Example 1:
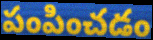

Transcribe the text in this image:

పంపించడం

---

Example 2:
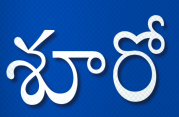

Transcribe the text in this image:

శూరో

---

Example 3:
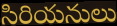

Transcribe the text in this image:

సిరియనులు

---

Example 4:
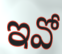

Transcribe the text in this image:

ఇవో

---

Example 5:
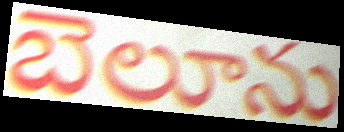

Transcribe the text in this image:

బెలూను